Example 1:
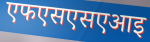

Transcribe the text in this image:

एफएसएसएआइ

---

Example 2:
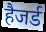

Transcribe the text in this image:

हैजर्ड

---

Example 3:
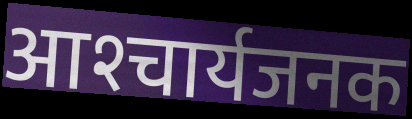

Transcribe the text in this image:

आश्चार्यजनक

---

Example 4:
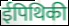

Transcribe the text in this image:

ईपिथिकी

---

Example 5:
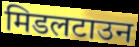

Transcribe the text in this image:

मिडलटाउन